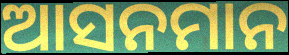
ଆସନମାନ